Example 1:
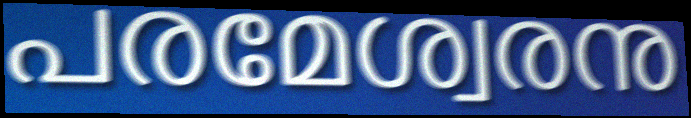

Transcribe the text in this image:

പരമേശ്വരനു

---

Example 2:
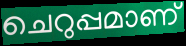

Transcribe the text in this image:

ചെറുപ്പമാണ്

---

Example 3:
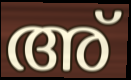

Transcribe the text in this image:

അ്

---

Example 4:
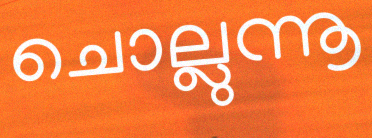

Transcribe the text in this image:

ചൊല്ലുന്നൂ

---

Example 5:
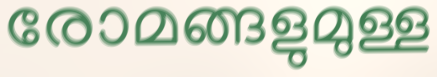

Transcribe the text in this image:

രോമങ്ങളുമുള്ള